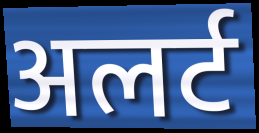
अलर्ट